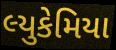
લ્યુકેમિયા